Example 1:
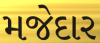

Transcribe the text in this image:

મજેદાર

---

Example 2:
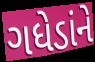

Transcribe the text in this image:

ગધેડાંને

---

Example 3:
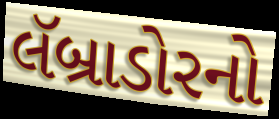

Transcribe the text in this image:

લૅબ્રાડોરનો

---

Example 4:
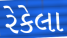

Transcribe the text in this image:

રેકેલા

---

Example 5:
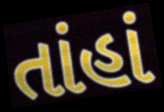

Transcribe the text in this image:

તાંહાં